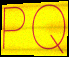
PQ